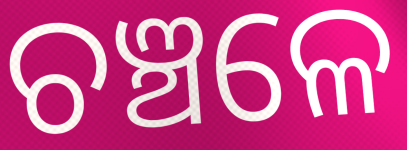
ଚଞ୍ଚଳେ